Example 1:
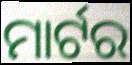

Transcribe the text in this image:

ମାର୍ଟର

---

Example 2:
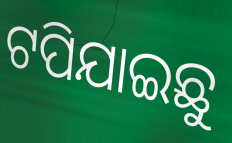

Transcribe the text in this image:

ଟପିଯାଇଛୁ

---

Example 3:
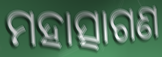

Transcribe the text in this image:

ମହାତ୍ସାଗଣ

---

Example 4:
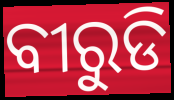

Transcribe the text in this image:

ବୀରୁଡି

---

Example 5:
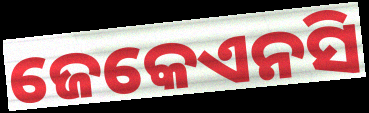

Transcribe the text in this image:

ଜେକେଏନସି